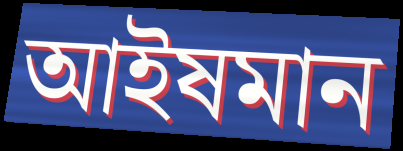
আইষমান